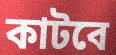
কাটবে